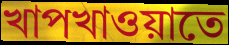
খাপখাওয়াতে